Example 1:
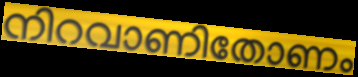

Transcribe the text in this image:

നിറവാണിതോണം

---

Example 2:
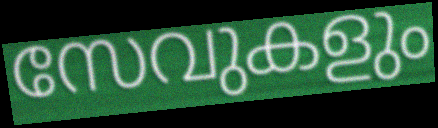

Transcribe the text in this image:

സേവുകളും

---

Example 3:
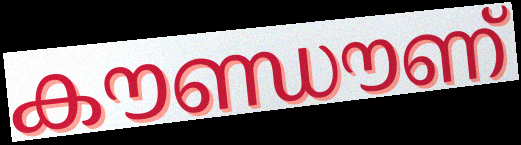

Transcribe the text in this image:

കൗണ്ഡൗണ്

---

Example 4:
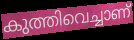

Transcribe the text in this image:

കുത്തിവെച്ചാണ്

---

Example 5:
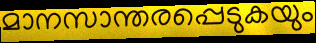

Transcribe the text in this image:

മാനസാന്തരപ്പെടുകയും